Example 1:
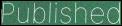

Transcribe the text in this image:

Published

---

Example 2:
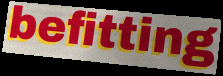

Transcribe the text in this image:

befitting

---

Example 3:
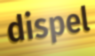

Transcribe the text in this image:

dispel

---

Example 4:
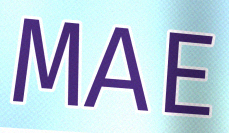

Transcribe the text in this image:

MAE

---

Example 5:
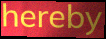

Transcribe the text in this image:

hereby